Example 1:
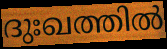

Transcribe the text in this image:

ദുഃഖത്തിൽ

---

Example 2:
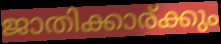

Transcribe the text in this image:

ജാതിക്കാര്ക്കും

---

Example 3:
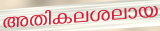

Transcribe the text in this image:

അതികലശലായ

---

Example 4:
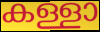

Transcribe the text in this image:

കള്ളാ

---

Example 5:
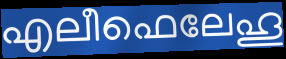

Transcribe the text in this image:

എലീഫെലേഹൂ